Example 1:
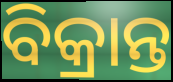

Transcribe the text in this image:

ବିକ୍ରାନ୍ତ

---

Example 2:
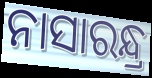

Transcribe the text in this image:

ନାସାରନ୍ଧ୍ର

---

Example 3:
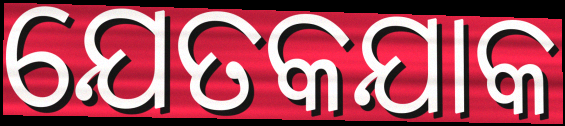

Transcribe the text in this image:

ଯେତକଯାକ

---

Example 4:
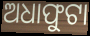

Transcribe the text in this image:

ଅଧାଫୁଟା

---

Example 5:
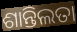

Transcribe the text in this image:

ଶାନ୍ତିଲତା